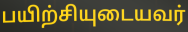
பயிற்சியுடையவர்